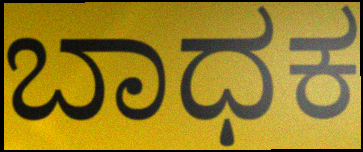
ಬಾಧಕ